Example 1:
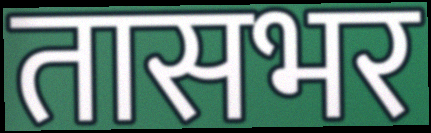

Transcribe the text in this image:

तासभर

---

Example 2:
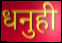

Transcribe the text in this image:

धनुही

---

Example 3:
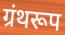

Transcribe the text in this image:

ग्रंथरूप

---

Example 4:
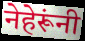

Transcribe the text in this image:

नेहेरूंनी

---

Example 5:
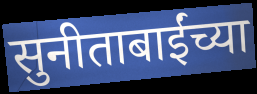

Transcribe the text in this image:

सुनीताबाईंच्या